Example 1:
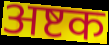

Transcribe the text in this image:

अष्टक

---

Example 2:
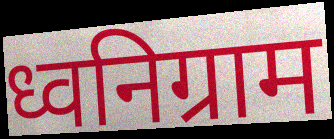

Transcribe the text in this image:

ध्वनिग्राम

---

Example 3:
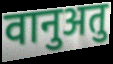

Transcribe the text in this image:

वानुअतु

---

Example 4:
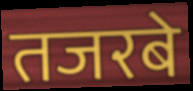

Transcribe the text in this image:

तजरबे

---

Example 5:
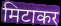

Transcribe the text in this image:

मिटाकर